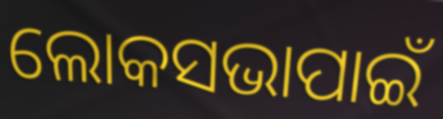
ଲୋକସଭାପାଇଁ